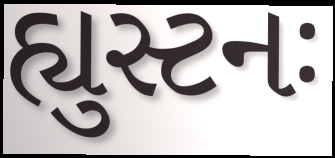
હ્યુસ્ટનઃ